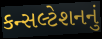
કન્સલ્ટેશનનું